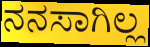
ನನಸಾಗಿಲ್ಲ